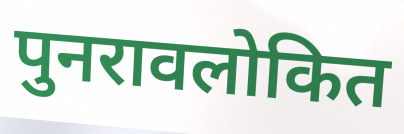
पुनरावलोकित